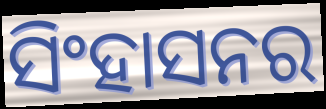
ସିଂହାସନର